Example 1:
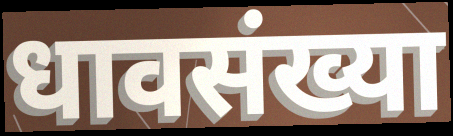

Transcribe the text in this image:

धावसंख्या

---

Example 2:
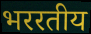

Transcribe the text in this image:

भररतीय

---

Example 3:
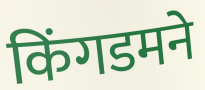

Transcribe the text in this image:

किंगडमने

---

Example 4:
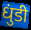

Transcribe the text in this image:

धुंडी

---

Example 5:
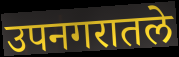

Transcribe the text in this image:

उपनगरातले